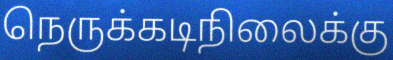
நெருக்கடிநிலைக்கு